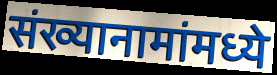
संख्यानामांमध्ये